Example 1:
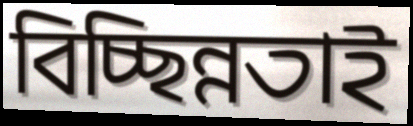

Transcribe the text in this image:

বিচ্ছিন্নতাই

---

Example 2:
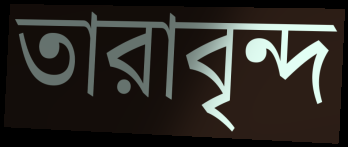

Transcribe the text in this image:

তারাবৃন্দ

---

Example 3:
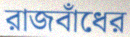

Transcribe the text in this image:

রাজবাঁধের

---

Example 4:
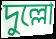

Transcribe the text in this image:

দুল্লো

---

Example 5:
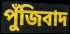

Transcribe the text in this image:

পুঁজিবাদ